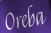
Oreba